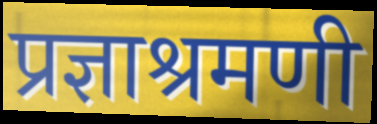
प्रज्ञाश्रमणी